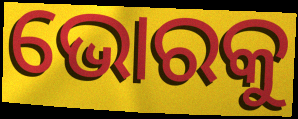
ଭୋରକୁ